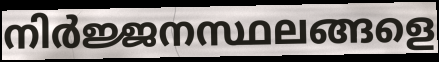
നിർജ്ജനസ്ഥലങ്ങളെ